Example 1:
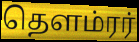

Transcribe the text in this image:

தௌம்ரர்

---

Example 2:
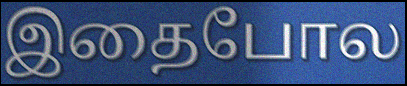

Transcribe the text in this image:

இதைபோல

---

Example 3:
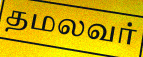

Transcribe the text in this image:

தமலவர்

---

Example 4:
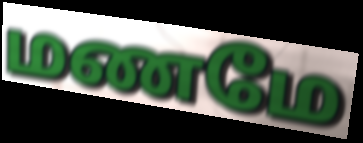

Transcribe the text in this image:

மணமே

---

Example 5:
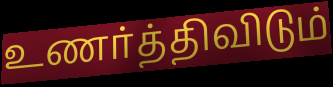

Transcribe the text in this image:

உணர்த்திவிடும்